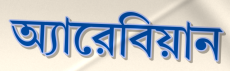
অ্যারেবিয়ান